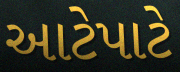
આટેપાટે